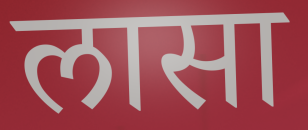
लासा